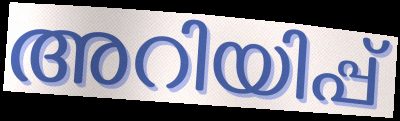
അറിയിപ്പ്